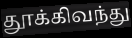
தூக்கிவந்து